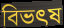
বিভৎষ